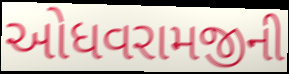
ઓધવરામજીની